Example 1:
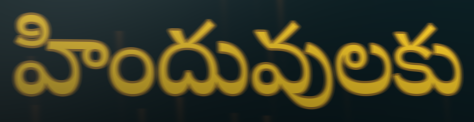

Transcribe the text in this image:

హిందువులకు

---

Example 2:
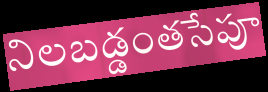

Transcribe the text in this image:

నిలబడ్డంతసేపూ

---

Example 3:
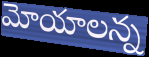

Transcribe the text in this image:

మోయాలన్న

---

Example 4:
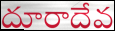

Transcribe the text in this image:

దూరాదేవ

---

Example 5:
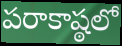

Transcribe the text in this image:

పరాకాష్ఠలో